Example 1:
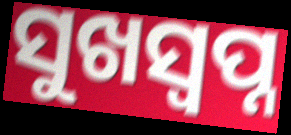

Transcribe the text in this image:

ସୁଖସ୍ୱପ୍ନ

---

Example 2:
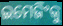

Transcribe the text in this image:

ଇମେଜିଂକୁ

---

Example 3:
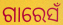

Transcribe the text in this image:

ଗାରେସଁ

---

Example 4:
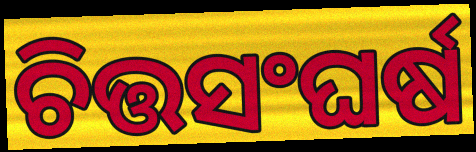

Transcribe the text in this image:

ଚିତ୍ତସଂଘର୍ଷ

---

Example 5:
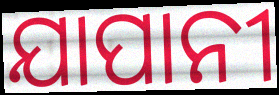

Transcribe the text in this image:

ଯାପାନୀ